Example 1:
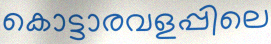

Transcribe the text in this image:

കൊട്ടാരവളപ്പിലെ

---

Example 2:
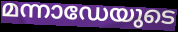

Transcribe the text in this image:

മന്നാഡേയുടെ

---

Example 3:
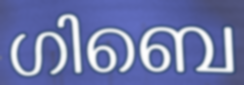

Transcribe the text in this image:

ഗിബെ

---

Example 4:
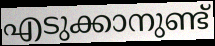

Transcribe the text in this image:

എടുക്കാനുണ്ട്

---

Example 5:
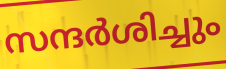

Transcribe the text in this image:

സന്ദർശിച്ചും